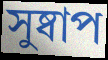
সুষ্বাপ